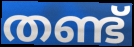
തണ്ട്